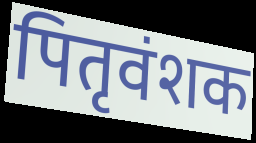
पितृवंशक